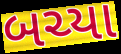
બચ્યા